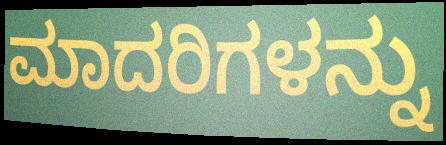
ಮಾದರಿಗಳನ್ನು